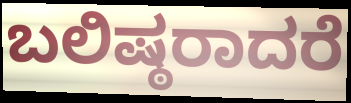
ಬಲಿಷ್ಠರಾದರೆ